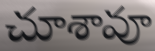
చూశావూ